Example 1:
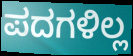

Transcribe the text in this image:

ಪದಗಳಿಲ್ಲ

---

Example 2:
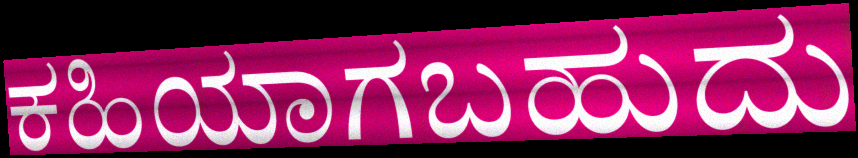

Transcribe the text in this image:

ಕಹಿಯಾಗಬಹುದು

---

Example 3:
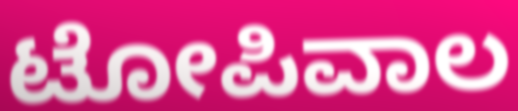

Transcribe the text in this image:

ಟೋಪಿವಾಲ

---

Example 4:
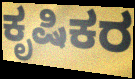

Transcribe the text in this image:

ಕೃಷಿಕರ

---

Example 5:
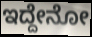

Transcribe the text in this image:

ಇದ್ದೇನೋ